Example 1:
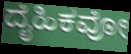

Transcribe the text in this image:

ದೈಹಿಕವೋ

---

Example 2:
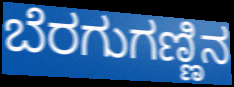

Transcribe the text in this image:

ಬೆರಗುಗಣ್ಣಿನ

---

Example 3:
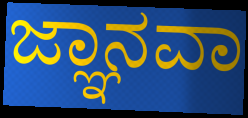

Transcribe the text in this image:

ಜ್ಞಾನವಾ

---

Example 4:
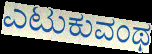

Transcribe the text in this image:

ಎಟುಕುವಂಥ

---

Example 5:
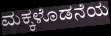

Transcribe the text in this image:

ಮಕ್ಕಳೊಡನೆಯ